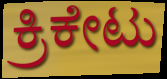
ಕ್ರಿಕೇಟು